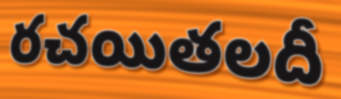
రచయితలదీ